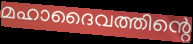
മഹാദൈവത്തിന്റെ